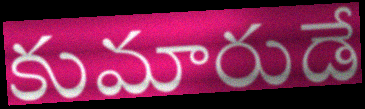
కుమారుడే